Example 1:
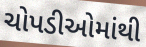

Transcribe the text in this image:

ચોપડીઓમાંથી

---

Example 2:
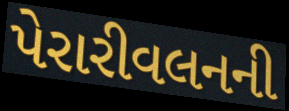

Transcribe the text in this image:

પેરારીવલનની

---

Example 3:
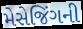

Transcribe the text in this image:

મેસેજિંગની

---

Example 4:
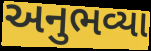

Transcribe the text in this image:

અનુભવ્યા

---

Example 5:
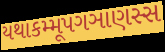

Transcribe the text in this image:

યથાકમ્મૂપગઞાણસ્સ